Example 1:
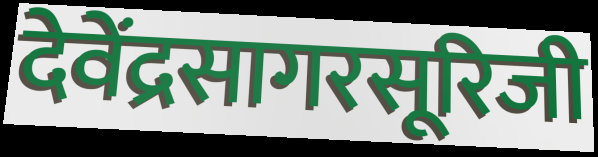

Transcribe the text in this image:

देवेंद्रसागरसूरिजी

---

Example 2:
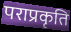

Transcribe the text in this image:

पराप्रकृति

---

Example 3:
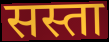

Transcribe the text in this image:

सस्‍ता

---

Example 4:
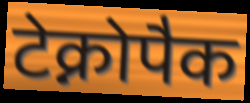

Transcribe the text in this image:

टेक्नोपैक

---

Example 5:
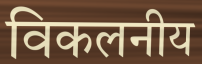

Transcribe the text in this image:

विकलनीय